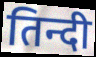
तिन्दी